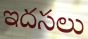
ఇదసలు